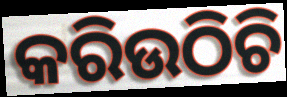
କରିଉଠିଚି